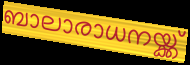
ബാലാരാധനയ്ക്ക്